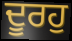
ਦੂਰਹੁ